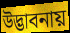
উদ্ভাবনায়